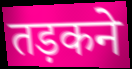
तड़कने